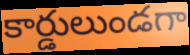
కార్డులుండగా